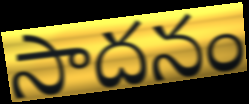
సాదనం